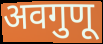
अवगुणू